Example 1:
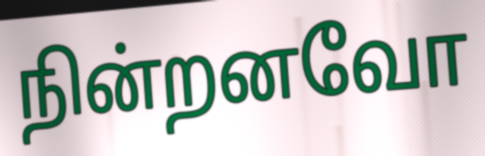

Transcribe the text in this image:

நின்றனவோ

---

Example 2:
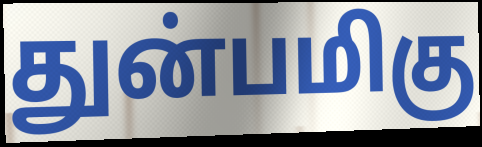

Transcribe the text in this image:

துன்பமிகு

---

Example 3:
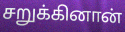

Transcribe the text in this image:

சறுக்கினான்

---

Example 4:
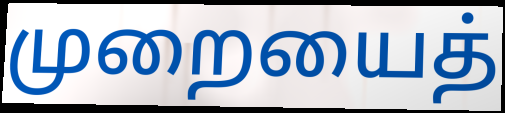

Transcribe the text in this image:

முறையைத்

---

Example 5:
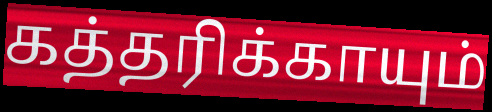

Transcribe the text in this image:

கத்தரிக்காயும்